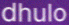
dhulo